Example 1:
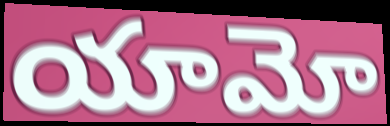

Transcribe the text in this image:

యామో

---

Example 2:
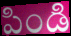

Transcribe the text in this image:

పిండి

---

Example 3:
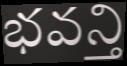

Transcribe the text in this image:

భవన్తి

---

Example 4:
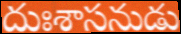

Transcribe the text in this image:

దుఃశాసనుడు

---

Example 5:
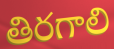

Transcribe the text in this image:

తిరగాలి